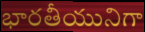
భారతీయునిగా